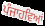
ਪੰਜਾਹਵਿਆਂ